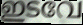
ഇടവേ